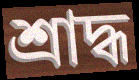
শ্রাদ্ধ